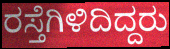
ರಸ್ತೆಗಿಳಿದಿದ್ದರು